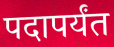
पदापर्यंत